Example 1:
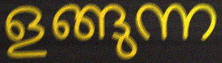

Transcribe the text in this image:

ളങ്ങുന്ന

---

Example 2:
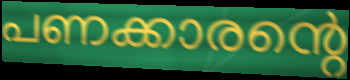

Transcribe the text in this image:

പണക്കാരന്റെ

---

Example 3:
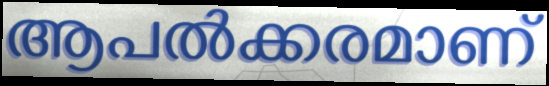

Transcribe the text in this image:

ആപൽക്കരമാണ്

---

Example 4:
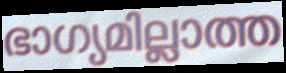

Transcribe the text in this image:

ഭാഗ്യമില്ലാത്ത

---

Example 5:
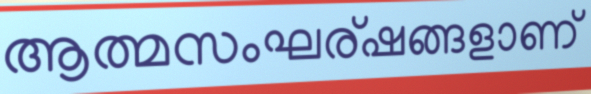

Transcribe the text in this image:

ആത്മസംഘര്ഷങ്ങളാണ്